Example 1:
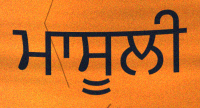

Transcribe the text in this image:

ਮਾਸੂਲੀ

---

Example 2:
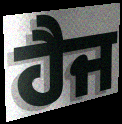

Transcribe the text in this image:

ਹੈਜ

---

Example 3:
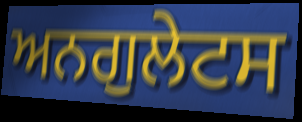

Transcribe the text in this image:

ਅਨਗੁਲੇਟਸ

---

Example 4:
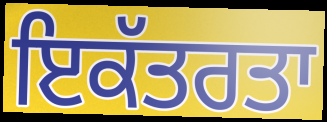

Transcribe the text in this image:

ਇਕੱਤਰਤਾ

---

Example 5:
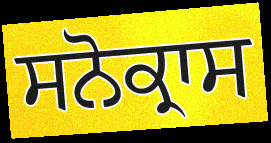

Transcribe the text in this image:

ਸਨੋਕ੍ਰਾਸ